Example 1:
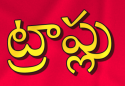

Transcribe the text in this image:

ట్రాప్లు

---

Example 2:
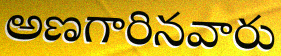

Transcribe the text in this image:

అణగారినవారు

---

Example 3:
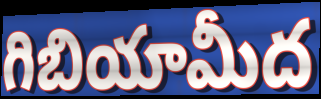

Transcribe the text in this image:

గిబియామీద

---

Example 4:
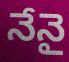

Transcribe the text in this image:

నేనై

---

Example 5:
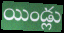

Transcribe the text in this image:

యిండ్లు